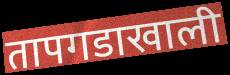
तापगडाखाली